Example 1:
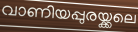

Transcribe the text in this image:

വാണിയപ്പുരയ്ക്കലെ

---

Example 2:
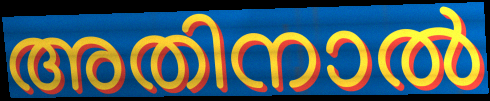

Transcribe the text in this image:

അതിനാൽ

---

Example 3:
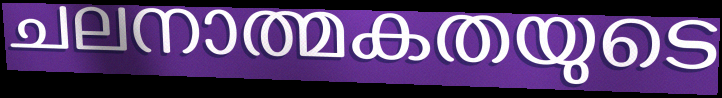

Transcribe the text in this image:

ചലനാത്മകതയുടെ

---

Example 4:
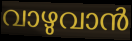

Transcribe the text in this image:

വാഴുവാൻ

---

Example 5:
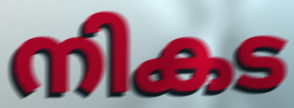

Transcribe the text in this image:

നികട